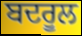
ਬਦਰੂਲ